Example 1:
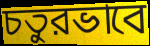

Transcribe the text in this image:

চতুরভাবে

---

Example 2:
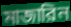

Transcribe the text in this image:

মাজারিন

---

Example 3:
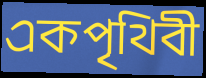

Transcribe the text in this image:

একপৃথিবী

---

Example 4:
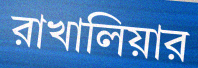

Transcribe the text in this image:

রাখালিয়ার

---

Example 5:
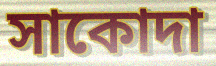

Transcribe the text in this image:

সাকোদা